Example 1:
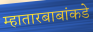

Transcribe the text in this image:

म्हातारबाबांकडे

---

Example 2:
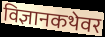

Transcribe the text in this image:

विज्ञानकथेवर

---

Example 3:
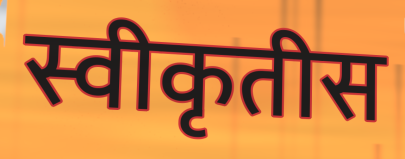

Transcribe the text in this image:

स्वीकृतीस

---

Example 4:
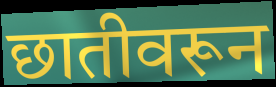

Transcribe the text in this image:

छातीवरून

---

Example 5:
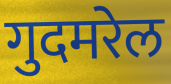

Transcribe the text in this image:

गुदमरेल